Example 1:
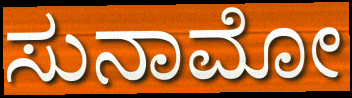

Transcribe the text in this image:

ಸುನಾಮೋ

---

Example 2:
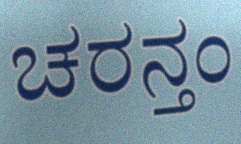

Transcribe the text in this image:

ಚರನ್ತಂ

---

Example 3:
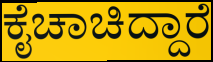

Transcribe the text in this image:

ಕೈಚಾಚಿದ್ದಾರೆ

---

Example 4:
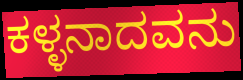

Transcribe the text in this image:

ಕಳ್ಳನಾದವನು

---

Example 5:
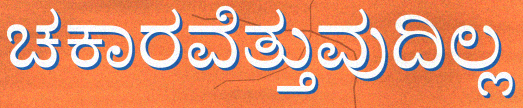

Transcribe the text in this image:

ಚಕಾರವೆತ್ತುವುದಿಲ್ಲ